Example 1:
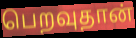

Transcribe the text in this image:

பெறவுதான்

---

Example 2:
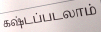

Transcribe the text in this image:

கஷ்டப்படலாம்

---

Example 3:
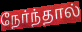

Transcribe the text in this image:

நேர்ந்தால்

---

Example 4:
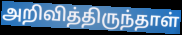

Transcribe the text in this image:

அறிவித்திருந்தாள்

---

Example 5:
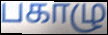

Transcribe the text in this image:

பகாழு